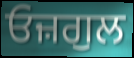
ਓਜ਼ਗੁਲ